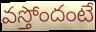
వస్తోందంటే